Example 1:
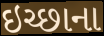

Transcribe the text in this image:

ઇચ્છાના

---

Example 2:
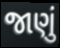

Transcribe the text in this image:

જાણું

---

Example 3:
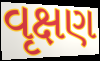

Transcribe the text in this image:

વૃક્ષણ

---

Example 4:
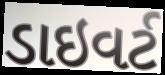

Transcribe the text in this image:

ડાઇવર્ટ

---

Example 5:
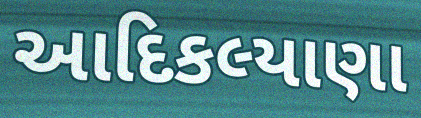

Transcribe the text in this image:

આદિકલ્યાણા